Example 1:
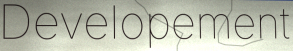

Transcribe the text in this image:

Developement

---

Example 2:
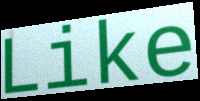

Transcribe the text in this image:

Like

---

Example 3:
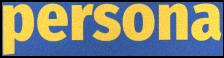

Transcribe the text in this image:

persona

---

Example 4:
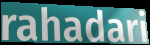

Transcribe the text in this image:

rahadari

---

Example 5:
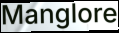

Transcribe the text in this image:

Manglore